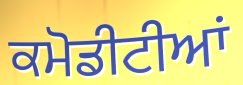
ਕਮੋਡੀਟੀਆਂ